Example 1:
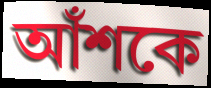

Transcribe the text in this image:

আঁশকে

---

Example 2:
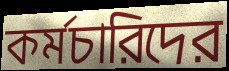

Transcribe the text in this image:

কর্মচারিদের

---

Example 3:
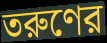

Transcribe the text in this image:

তরুণের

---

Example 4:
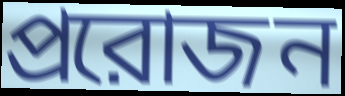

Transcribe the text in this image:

প্ররোজন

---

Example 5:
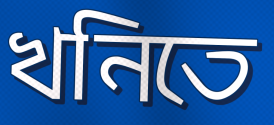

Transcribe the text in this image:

খনিতে